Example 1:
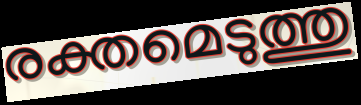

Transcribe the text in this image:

രക്തമെടുത്തു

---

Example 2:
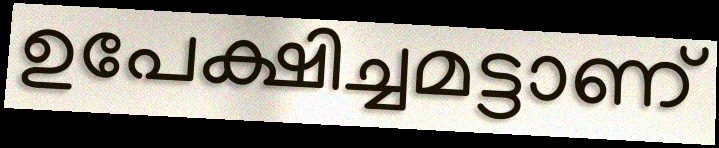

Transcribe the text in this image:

ഉപേക്ഷിച്ചമട്ടാണ്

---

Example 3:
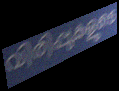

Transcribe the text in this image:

വിരിപ്പുകളുടെ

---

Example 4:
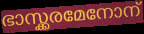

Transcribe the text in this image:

ഭാസ്ക്കരമേനോന്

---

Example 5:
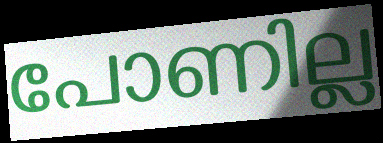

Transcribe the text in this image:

പോണില്ല